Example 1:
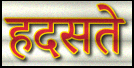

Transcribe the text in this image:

हदसते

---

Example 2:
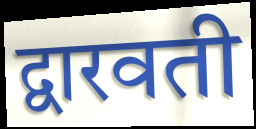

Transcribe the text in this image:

द्वारवती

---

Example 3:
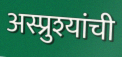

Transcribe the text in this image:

अस्प्रुश्यांची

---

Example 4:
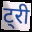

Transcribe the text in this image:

ट्री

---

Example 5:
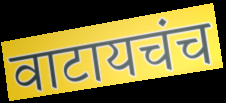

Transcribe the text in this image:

वाटायचंच